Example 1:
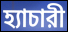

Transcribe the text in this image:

হ্যাচারী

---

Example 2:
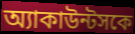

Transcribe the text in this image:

অ্যাকাউন্টসকে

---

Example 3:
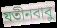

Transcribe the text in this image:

যতীনবাবু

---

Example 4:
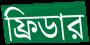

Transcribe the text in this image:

ফ্রিডার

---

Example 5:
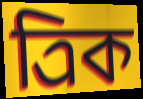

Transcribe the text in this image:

ত্রিক